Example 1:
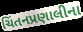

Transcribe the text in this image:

ચિંતનપ્રણાલીના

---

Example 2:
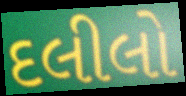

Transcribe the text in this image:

દલીલો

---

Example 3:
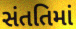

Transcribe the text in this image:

સંતતિમાં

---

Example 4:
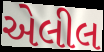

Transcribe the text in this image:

એલીલ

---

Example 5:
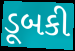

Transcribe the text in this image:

ડૂબકી